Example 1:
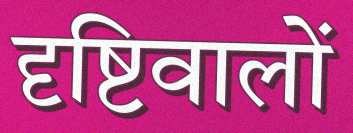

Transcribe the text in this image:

दृष्टिवालों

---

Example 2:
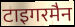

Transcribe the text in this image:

टाइगरमैन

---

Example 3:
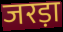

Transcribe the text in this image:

जरड़ा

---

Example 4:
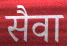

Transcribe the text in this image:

सैवा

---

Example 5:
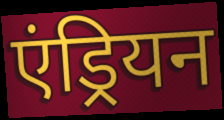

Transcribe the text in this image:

एंड्रियन